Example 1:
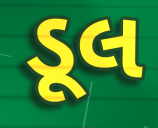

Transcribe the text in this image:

ડૂલ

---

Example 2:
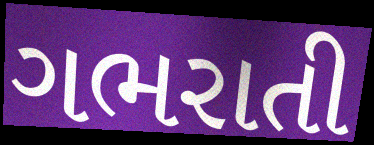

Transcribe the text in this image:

ગભરાતી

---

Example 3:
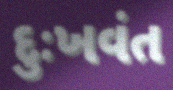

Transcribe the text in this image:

દુઃખવંત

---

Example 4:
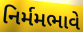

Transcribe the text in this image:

નિર્મમભાવે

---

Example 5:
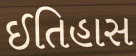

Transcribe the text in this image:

ઈતિહાસ